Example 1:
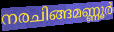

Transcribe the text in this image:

നരചിങ്ങമണ്ണൂർ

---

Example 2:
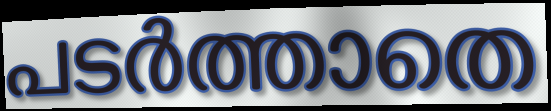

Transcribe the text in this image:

പടർത്താതെ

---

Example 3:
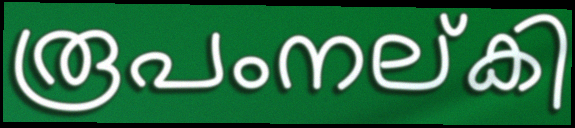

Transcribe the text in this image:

രൂപംനല്കി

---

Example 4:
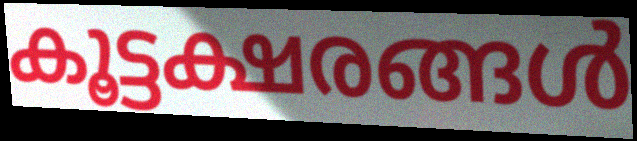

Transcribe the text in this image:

കൂട്ടക്ഷരങ്ങൾ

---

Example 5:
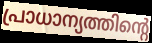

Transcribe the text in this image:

പ്രാധാന്യത്തിന്റെ